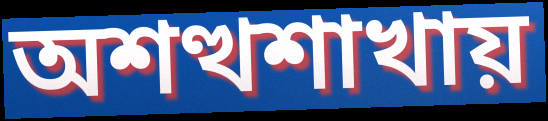
অশত্থশাখায়